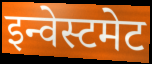
इन्वेस्टमेट